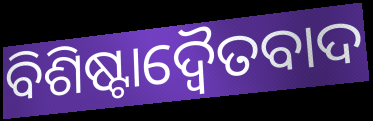
ବିଶିଷ୍ଟାଦ୍ଵୈତବାଦ